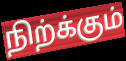
நிற்க்கும்